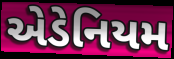
એડેનિયમ